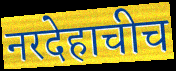
नरदेहाचीच